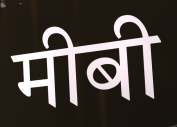
मीबी